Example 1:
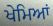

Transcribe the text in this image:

ਖੇਮਿਆਂ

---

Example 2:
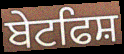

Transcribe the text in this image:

ਬੇਟਫਿਸ਼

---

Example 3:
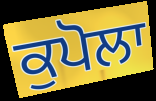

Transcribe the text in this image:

ਕੁਪੋਲਾ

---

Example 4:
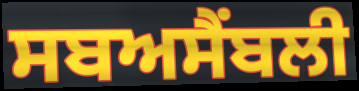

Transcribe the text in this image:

ਸਬਅਸੈਂਬਲੀ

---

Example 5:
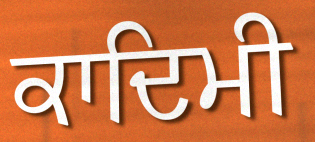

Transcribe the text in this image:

ਕਾਦਿਮੀ